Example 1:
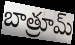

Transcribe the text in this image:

బాత్రూమ్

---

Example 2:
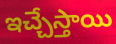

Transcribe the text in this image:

ఇచ్చేస్తాయి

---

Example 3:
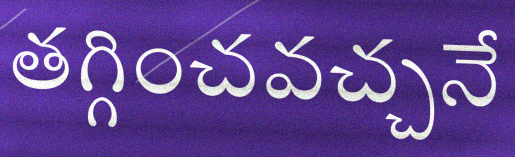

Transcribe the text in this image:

తగ్గించవచ్చనే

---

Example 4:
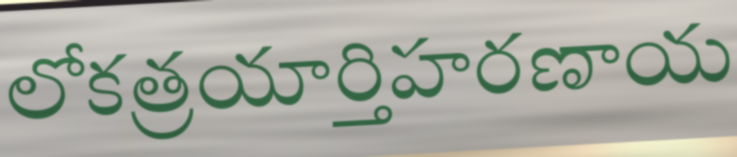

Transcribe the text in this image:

లోకత్రయార్తిహరణాయ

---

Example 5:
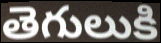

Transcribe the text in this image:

తెగులుకి